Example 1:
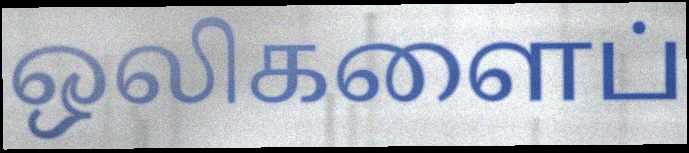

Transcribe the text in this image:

ஒலிகளைப்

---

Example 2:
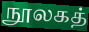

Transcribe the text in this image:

நூலகத்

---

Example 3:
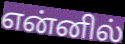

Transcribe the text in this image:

என்னில்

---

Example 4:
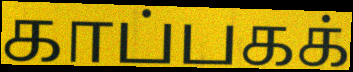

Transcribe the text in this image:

காப்பகக்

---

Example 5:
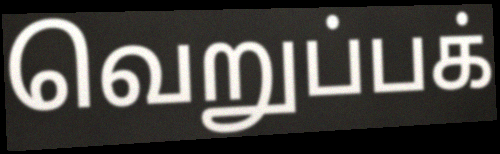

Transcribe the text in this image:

வெறுப்பக்